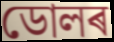
ডোলৰ